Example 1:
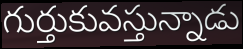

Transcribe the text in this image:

గుర్తుకువస్తున్నాడు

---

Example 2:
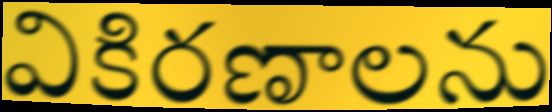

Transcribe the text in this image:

వికిరణాలను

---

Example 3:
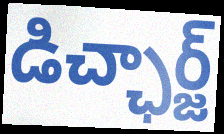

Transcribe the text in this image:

డిచ్ఛార్జ్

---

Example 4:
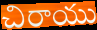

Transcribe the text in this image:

చిరాయు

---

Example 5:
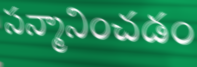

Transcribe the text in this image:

సన్మానించడం